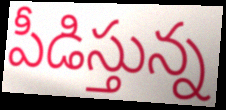
పీడిస్తున్న